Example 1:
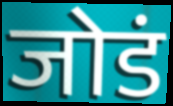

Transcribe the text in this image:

जोडं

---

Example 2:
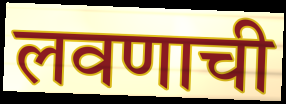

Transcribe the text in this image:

लवणाची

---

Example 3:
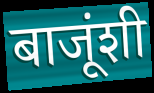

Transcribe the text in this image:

बाजूंशी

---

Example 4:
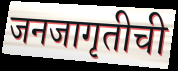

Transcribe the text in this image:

जनजागृतीची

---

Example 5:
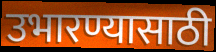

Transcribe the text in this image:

उभारण्यासाठी